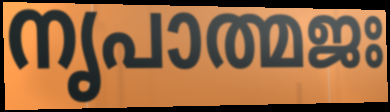
നൃപാത്മജഃ